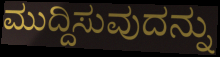
ಮುದ್ದಿಸುವುದನ್ನು